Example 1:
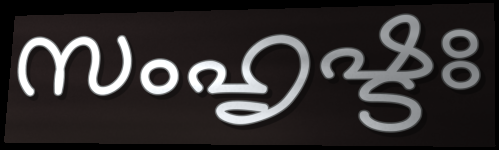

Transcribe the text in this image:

സംഹൃഷ്ടഃ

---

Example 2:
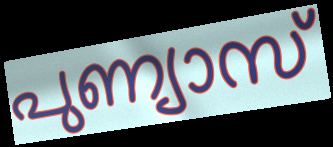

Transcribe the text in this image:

പുണ്യാസ്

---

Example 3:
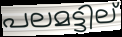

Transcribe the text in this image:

പലമട്ടില്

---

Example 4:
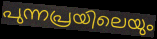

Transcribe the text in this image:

പുന്നപ്രയിലെയും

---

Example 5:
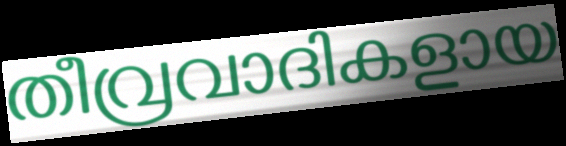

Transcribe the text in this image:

തീവ്രവാദികളായ